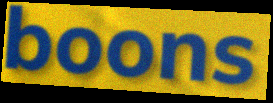
boons